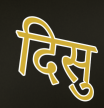
दिसु